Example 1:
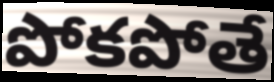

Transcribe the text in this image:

పోకపోతే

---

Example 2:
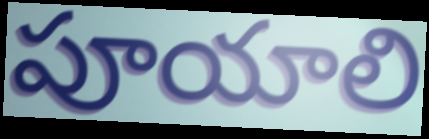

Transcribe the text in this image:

పూయాలి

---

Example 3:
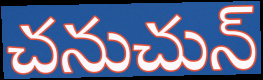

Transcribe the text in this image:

చనుచున్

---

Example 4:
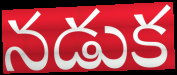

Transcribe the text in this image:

నడుక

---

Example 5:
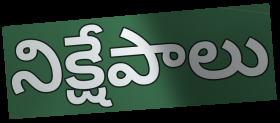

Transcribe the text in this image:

నిక్షేపాలు